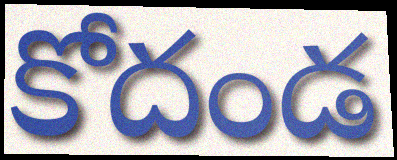
కోదండ